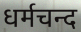
धर्मचन्द